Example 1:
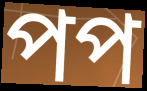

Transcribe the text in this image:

পপ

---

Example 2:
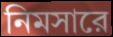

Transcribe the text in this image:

নিমসারে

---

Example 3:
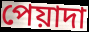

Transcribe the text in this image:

পেয়াদা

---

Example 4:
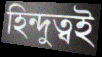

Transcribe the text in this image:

হিন্দুত্বই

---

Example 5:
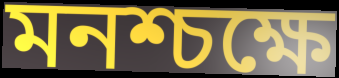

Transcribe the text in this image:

মনশ্চক্ষে